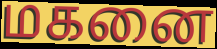
மகனை